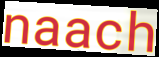
naach